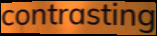
contrasting